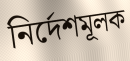
নির্দেশমূলক